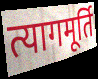
त्यागमूर्ति